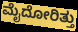
ಮೈದೋರಿತ್ತು